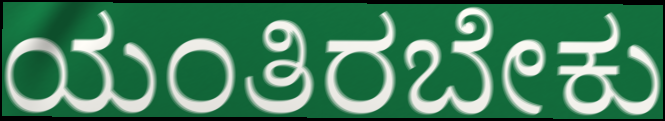
ಯಂತಿರಬೇಕು